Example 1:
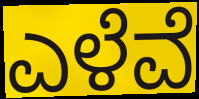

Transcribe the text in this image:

ಎಳೆವೆ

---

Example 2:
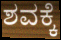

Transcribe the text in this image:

ಶವಕ್ಕೆ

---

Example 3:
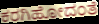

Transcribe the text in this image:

ಕರಗಿಹೋದಂತೆ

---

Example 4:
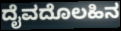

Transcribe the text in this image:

ದೈವದೊಲಹಿನ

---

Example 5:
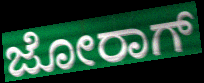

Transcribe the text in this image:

ಜೋರಾಗ್